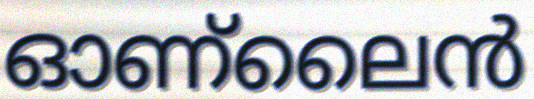
ഓണ്ലൈൻ